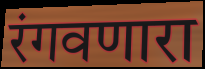
रंगवणारा